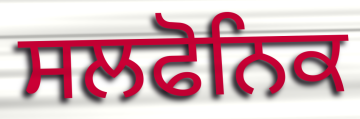
ਸਲਫੋਨਿਕ